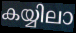
കയ്യിലാ